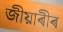
জীয়াৰীৰ